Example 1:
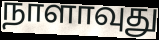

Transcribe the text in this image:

நாளாவுது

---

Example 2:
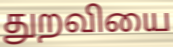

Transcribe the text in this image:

துறவியை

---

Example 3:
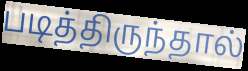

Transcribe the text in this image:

படித்திருந்தால்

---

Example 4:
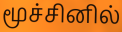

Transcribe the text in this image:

மூச்சினில்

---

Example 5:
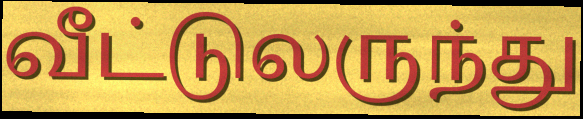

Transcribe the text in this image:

வீட்டுலருந்து